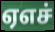
ஏஎச்